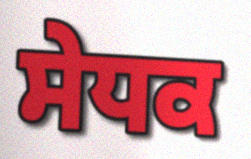
ਸੇਧਕ